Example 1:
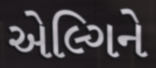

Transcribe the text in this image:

એલ્ગિને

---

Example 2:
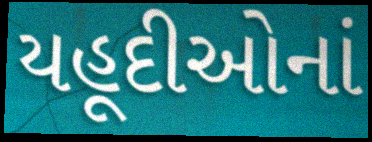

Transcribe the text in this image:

યહૂદીઓનાં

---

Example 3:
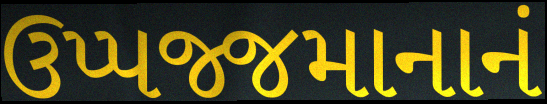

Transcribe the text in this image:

ઉપ્પજ્જમાનાનં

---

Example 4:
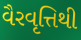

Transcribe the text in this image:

વૈરવૃત્તિથી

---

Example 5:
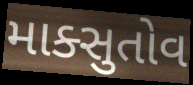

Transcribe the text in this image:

માક્સુતોવ